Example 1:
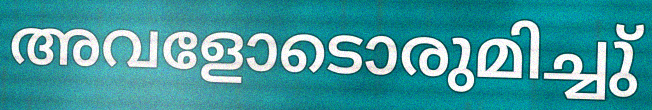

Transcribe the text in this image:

അവളോടൊരുമിച്ചു്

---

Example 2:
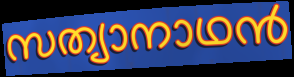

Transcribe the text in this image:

സത്യാനാഥൻ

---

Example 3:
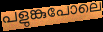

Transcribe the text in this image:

പളുങ്കുപോലെ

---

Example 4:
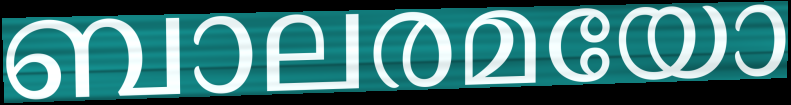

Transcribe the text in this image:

ബാലരമയോ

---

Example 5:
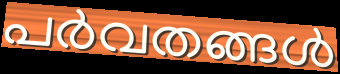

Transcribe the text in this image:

പർവതങ്ങൾ